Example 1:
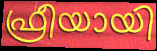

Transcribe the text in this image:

ഫ്രീയായി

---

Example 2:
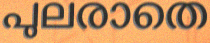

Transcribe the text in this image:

പുലരാതെ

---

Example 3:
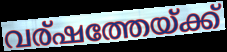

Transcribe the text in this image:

വര്ഷത്തേയ്ക്ക്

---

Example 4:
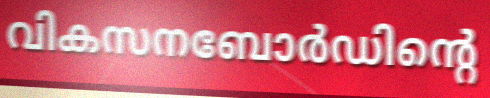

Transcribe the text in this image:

വികസനബോർഡിന്റെ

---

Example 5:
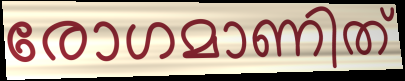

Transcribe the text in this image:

രോഗമാണിത്